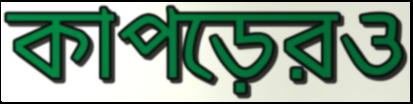
কাপড়েরও